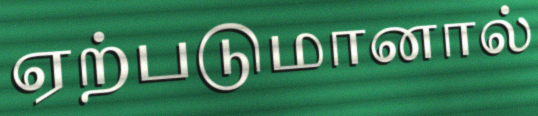
ஏற்படுமானால்